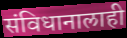
संविधानालाही